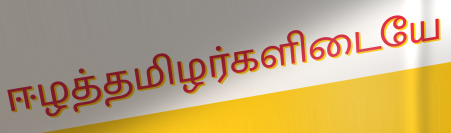
ஈழத்தமிழர்களிடையே